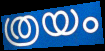
ത്രയം